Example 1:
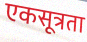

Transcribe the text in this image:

एकसूत्रता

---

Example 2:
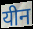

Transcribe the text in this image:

यीन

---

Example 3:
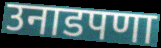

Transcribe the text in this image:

उनाडपणा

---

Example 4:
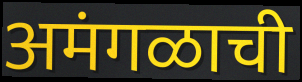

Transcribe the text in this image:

अमंगळाची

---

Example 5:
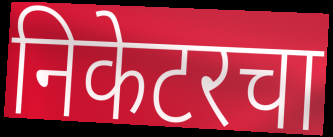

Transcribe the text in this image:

निकेटरचा